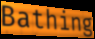
Bathing